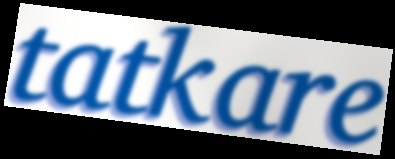
tatkare